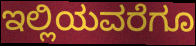
ಇಲ್ಲಿಯವರೆಗೂ